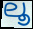
ലൂ